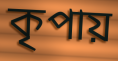
কৃপায়